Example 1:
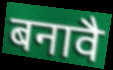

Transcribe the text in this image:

बनावै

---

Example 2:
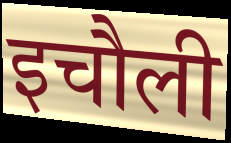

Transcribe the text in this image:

इचौली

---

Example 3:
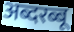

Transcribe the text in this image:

अब्दरब्बू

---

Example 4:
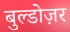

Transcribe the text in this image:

बुल्डोज़र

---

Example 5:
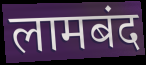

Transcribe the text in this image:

लामबंद